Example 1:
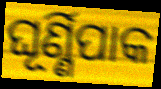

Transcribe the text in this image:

ଘୂର୍ଣ୍ଣିପାକ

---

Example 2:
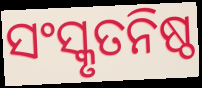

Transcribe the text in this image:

ସଂସ୍କୃତନିଷ୍ଠ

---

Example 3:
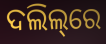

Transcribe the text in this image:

ଦଲିଲ୍‌ରେ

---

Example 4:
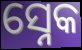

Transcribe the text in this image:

ସ୍ନେକ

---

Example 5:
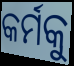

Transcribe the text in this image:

କର୍ମକୁ